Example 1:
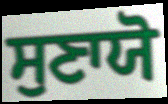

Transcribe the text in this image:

ਸੁਣਾਯੋ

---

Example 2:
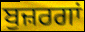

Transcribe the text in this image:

ਬੁਜ਼ਰਗਾਂ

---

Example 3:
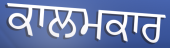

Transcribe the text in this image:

ਕਾਲਮਕਾਰ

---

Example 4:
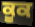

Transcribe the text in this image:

ਕੂਕ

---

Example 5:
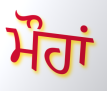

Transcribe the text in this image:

ਮੌਹਾਂ